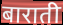
बाराती